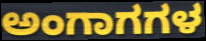
ಅಂಗಾಗಗಳ